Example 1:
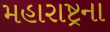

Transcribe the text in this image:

મહારાષ્ટ્રના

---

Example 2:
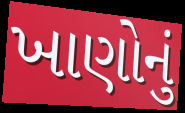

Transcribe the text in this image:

ખાણોનું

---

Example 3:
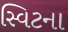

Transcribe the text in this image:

સ્વિટના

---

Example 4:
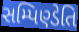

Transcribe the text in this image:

સમ્પિણ્ડેતિ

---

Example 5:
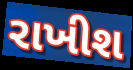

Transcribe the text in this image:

રાખીશ